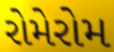
રોમેરોમ